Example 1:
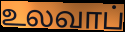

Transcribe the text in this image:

உலவாப்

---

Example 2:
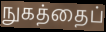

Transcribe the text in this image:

நுகத்தைப்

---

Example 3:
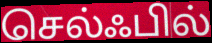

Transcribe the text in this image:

செல்ஃபில்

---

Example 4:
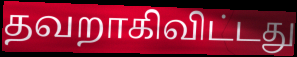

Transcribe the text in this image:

தவறாகிவிட்டது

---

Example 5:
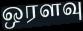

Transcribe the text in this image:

ஒரளவு